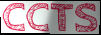
CCTS